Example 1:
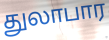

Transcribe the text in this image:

துலாபார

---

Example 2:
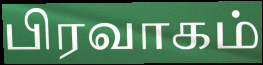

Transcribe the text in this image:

பிரவாகம்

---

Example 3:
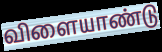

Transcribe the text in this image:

விளையாண்டு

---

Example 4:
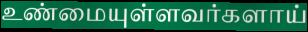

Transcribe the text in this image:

உண்மையுள்ளவர்களாய்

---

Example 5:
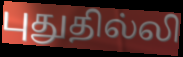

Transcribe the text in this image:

புதுதில்லி